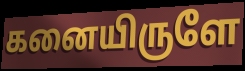
கனையிருளே